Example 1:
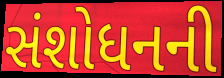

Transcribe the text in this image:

સંશોધનની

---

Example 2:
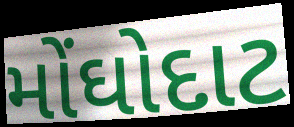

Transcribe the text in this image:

મોંઘોદાટ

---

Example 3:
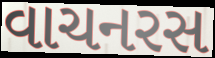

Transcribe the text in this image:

વાચનરસ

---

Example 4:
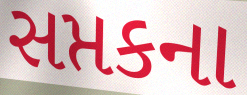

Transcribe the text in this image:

સપ્તકના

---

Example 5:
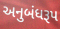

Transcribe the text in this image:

અનુબંધરૂપ